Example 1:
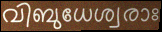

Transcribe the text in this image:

വിബുധേശ്വരാഃ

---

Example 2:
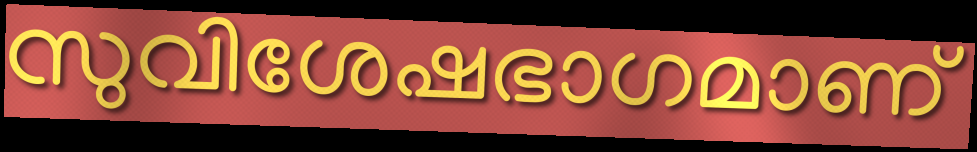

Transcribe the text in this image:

സുവിശേഷഭാഗമാണ്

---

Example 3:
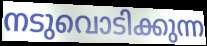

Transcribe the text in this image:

നടുവൊടിക്കുന്ന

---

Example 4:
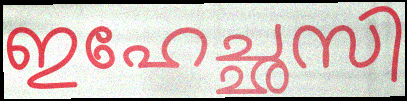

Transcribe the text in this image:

ഇഹേച്ഛസി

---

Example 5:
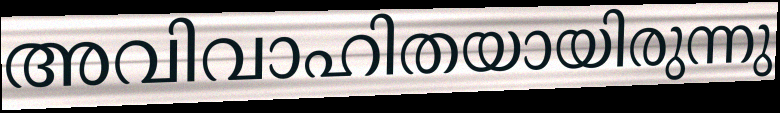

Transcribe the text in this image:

അവിവാഹിതയായിരുന്നു